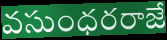
వసుంధరరాజే